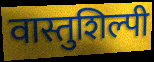
वास्तुशिल्पी